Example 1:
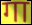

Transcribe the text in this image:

गा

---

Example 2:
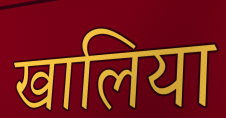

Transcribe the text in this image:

खालिया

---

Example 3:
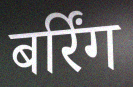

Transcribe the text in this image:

बर्रिंग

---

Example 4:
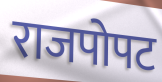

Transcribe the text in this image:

राजपोपट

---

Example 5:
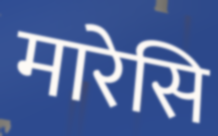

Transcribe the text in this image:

मारेसि